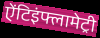
ऐंटिइंफ्लामेट्री